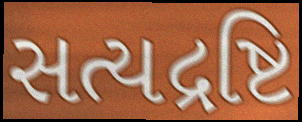
સત્યદ્રષ્ટિ